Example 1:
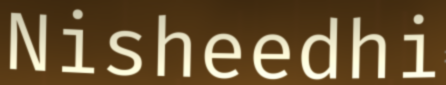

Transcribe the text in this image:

Nisheedhi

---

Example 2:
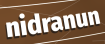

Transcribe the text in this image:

nidranun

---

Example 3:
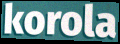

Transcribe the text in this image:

korola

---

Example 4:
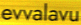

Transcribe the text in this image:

evvalavu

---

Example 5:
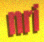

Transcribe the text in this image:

nri